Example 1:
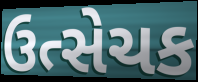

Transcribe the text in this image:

ઉત્સેચક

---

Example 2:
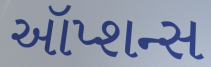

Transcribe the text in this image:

ઑપ્શન્સ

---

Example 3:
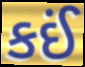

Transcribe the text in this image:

કઈં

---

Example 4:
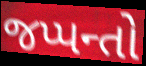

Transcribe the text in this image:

જપ્પન્તો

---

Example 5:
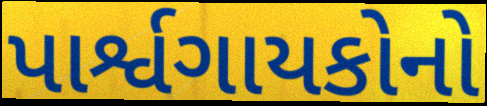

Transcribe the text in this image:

પાર્શ્વગાયકોનો